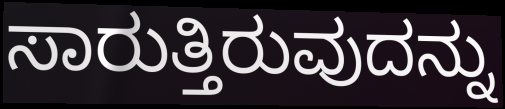
ಸಾರುತ್ತಿರುವುದನ್ನು